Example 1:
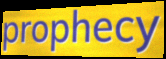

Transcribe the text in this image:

prophecy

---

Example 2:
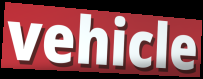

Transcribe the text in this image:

vehicle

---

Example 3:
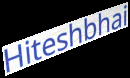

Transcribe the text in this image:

Hiteshbhai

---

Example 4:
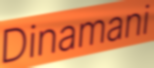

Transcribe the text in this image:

Dinamani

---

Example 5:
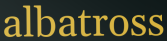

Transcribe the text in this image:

albatross